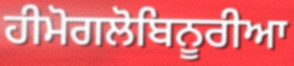
ਹੀਮੋਗਲੋਬਿਨੂਰੀਆ